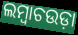
ଲମ୍ୱାଚଉଡ଼ା